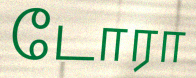
டோரா